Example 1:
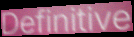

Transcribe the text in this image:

Definitive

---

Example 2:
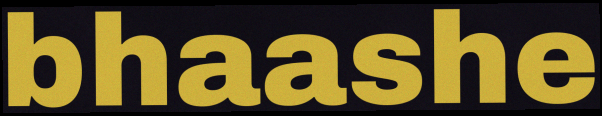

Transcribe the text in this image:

bhaashe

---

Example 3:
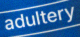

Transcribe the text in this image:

adultery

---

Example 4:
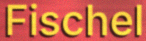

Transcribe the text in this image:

Fischel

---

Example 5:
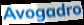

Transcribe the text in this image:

Avogadro